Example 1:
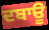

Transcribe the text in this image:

ਦਬਾਊ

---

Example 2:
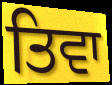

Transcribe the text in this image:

ਤਿਵਾ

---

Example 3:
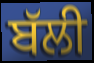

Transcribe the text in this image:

ਬੱਲੀ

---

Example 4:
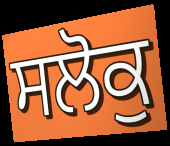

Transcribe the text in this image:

ਸਲੋਕੁ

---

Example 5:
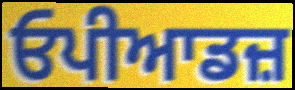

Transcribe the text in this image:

ਓਪੀਆਡਜ਼